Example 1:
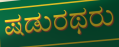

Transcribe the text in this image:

ಷಡುರಥರು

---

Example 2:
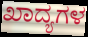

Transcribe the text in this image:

ಖಾದ್ಯಗಳ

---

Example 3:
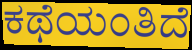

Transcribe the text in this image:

ಕಥೆಯಂತಿದೆ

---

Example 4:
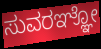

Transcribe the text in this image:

ಸುವರಞ್ಞೋ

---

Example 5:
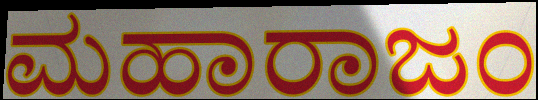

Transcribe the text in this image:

ಮಹಾರಾಜಂ